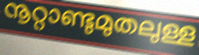
നൂറ്റാണ്ടുമുതലുള്ള